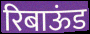
रिबाऊंड